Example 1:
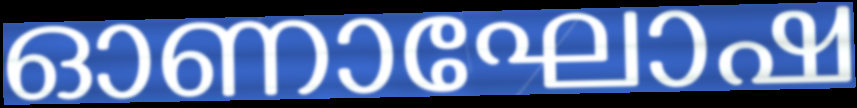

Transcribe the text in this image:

ഓണാഘോഷ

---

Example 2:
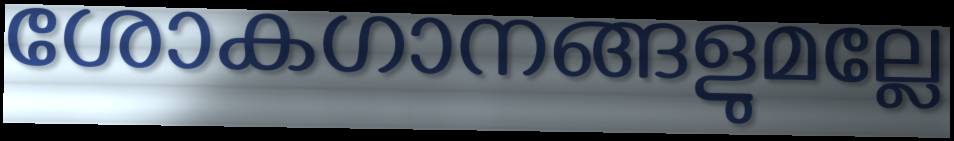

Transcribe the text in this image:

ശോകഗാനങ്ങളുമല്ലേ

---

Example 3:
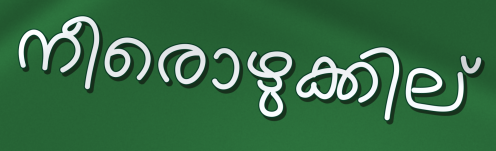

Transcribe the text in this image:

നീരൊഴുക്കില്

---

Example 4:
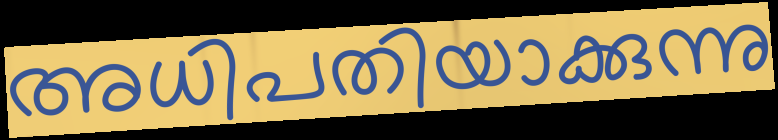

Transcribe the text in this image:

അധിപതിയാക്കുന്നു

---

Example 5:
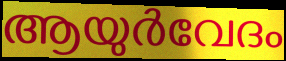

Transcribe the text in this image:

ആയുർവേദം